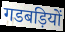
गडबड़ियों